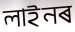
লাইনৰ